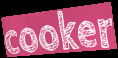
cooker